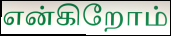
என்கிறோம்